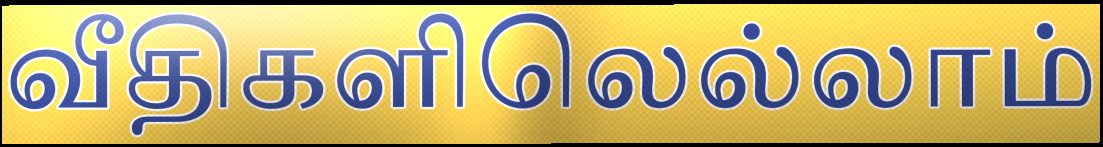
வீதிகளிலெல்லாம்